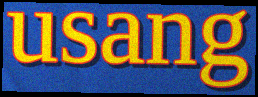
usang